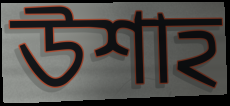
উশাহ